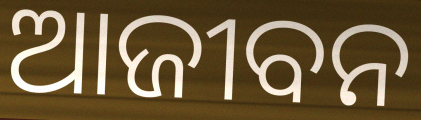
ଆଜୀବନ